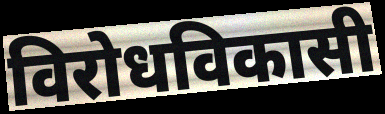
विरोधविकासी